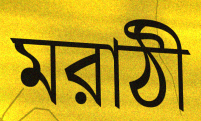
মরাঠী